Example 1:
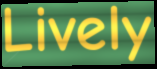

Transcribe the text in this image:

Lively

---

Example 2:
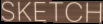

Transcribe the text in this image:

SKETCH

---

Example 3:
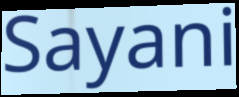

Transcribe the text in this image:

Sayani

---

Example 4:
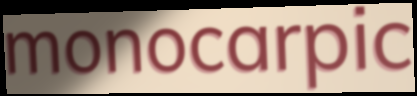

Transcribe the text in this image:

monocarpic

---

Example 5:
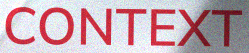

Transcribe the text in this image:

CONTEXT